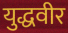
युद्धवीर